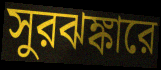
সুরঝঙ্কারে